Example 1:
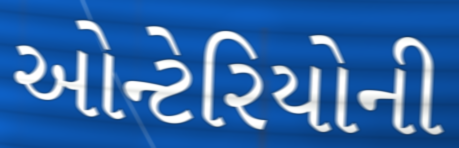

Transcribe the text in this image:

ઓન્ટેરિયોની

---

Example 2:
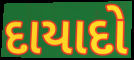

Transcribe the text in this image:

દાયાદો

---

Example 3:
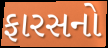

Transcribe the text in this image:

ફારસનો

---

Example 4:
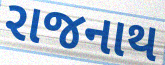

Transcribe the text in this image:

રાજનાથ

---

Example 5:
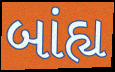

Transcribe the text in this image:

બાંહ્ય